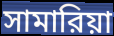
সামারিয়া